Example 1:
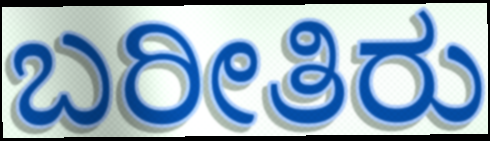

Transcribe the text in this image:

ಬರೀತಿರು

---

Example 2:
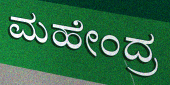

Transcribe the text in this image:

ಮಹೇಂದ್ರ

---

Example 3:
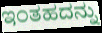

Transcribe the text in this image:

ಇಂತಹದನ್ನು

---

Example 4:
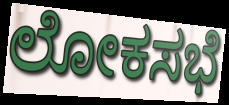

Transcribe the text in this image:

ಲೋಕಸಭೆ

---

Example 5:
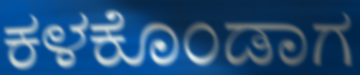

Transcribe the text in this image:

ಕಳಕೊಂಡಾಗ